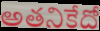
అతనికేదో